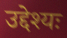
उद्देश्यः